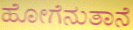
ಹೋಗೆನುತಾನೆ